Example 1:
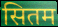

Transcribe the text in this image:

सितम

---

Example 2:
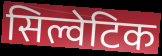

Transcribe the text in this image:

सिल्वेटिक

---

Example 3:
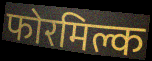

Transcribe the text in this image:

फोरमिल्क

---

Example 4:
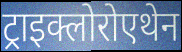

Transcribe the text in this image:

ट्राइक्लोरोएथेन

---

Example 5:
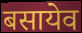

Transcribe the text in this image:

बसायेव